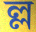
ল্ল